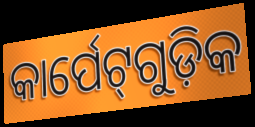
କାର୍ପେଟ୍‌ଗୁଡ଼ିକ